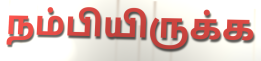
நம்பியிருக்க